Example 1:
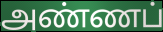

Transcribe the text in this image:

அண்ணப்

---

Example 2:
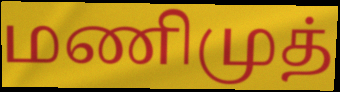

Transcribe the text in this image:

மணிமுத்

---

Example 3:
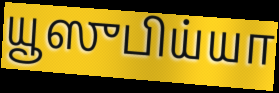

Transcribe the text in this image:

யூஸுபிய்யா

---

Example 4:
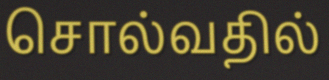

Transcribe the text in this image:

சொல்வதில்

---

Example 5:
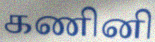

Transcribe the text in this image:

கணினி